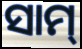
ସାମ୍